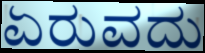
ಏರುವದು